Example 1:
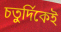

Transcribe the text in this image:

চতুর্দিকেই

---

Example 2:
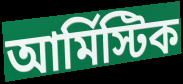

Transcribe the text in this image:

আর্মিস্টিক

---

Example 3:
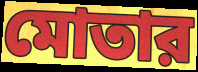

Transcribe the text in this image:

মোতার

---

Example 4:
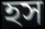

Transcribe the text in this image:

হস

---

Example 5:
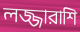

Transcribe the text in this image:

লজ্জারাশি